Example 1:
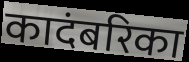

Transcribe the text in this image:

कादंबरिका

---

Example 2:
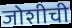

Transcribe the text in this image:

जोशीची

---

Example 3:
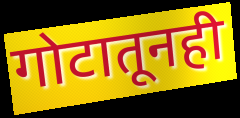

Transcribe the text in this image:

गोटातूनही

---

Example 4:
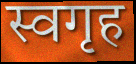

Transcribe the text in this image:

स्वगृह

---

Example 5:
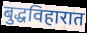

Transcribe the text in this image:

बुद्धविहारात